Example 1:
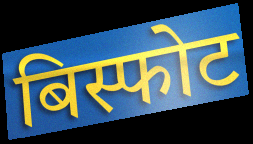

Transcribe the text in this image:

बिस्फोट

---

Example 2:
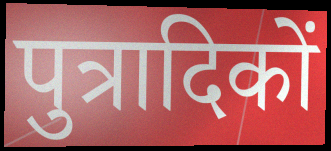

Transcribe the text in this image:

पुत्रादिकों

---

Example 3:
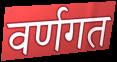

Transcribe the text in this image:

वर्णगत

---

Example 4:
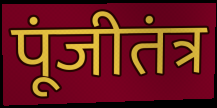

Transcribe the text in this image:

पूंजीतंत्र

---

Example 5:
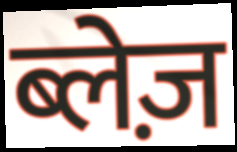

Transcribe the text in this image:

ब्लेज़